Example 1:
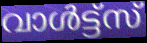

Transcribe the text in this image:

വാൾട്ട്സ്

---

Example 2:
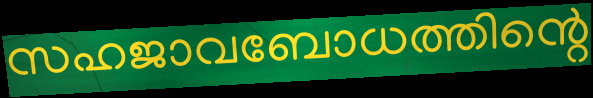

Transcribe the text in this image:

സഹജാവബോധത്തിന്റെ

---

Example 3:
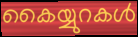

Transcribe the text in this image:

കൈയ്യുറകൾ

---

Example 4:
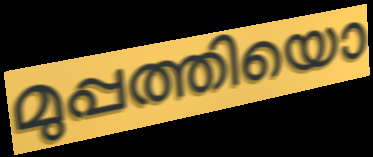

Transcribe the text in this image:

മുപ്പത്തിയൊ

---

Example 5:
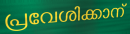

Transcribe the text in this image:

പ്രവേശിക്കാന്